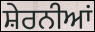
ਸ਼ੇਰਨੀਆਂ